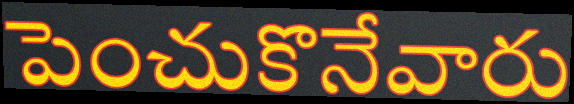
పెంచుకొనేవారు